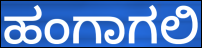
ಹಂಗಾಗಲಿ